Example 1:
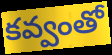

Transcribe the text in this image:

కవ్వంతో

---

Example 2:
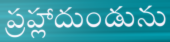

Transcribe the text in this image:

ప్రహ్లాదుండును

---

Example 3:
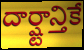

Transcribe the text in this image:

దార్ష్టాన్తికే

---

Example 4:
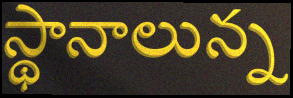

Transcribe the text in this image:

స్థానాలున్న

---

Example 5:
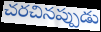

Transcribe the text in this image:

చరచినప్పుడు